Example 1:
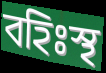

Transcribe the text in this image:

বহিঃস্থ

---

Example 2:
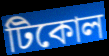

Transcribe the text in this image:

টিকোল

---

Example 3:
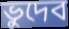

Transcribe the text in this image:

ভুদেব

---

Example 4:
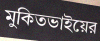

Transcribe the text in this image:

মুকিতভাইয়ের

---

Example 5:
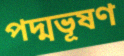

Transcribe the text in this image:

পদ্মভূষণ